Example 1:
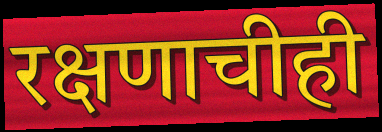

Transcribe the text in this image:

रक्षणाचीही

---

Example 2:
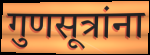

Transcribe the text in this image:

गुणसूत्रांना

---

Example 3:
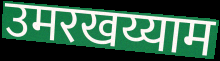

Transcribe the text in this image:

उमरखय्याम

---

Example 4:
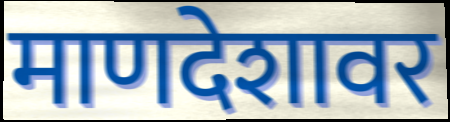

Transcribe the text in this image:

माणदेशावर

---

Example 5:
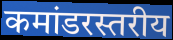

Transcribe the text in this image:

कमांडरस्तरीय